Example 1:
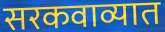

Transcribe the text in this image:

सरकवाव्यात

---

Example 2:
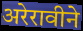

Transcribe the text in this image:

अरेरावीने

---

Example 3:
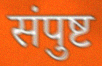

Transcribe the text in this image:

संपुष्ट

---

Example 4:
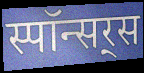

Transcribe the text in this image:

स्पॉन्सर्स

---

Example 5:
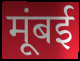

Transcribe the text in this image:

मूंबई